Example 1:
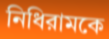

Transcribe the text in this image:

নিধিরামকে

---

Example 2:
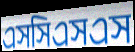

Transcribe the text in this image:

এসসিএসএস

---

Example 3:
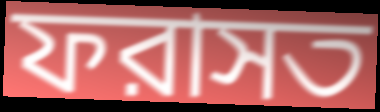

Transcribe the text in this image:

ফরাসত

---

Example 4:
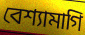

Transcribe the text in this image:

বেশ্যামাগি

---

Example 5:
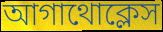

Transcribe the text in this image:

আগাথোক্লেস